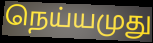
நெய்யமுது